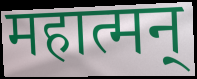
महात्मन्